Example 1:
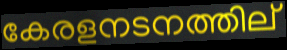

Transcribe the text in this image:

കേരളനടനത്തില്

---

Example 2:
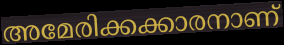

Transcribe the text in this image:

അമേരിക്കക്കാരനാണ്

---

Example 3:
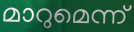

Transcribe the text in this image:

മാറുമെന്ന്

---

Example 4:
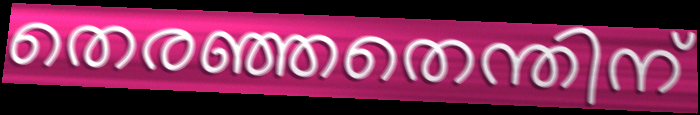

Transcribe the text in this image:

തെരഞ്ഞതെന്തിന്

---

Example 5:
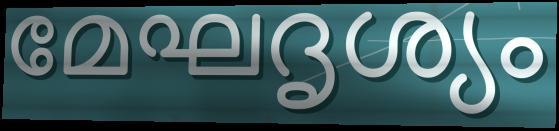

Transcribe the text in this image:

മേഘദൃശ്യം